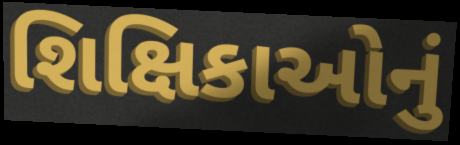
શિક્ષિકાઓનું